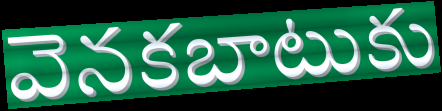
వెనకబాటుకు